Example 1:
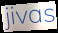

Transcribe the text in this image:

jivas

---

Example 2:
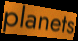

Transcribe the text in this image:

planets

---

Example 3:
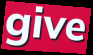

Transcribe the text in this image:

give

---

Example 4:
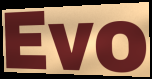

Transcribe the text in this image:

Evo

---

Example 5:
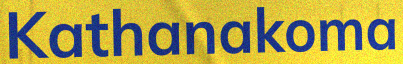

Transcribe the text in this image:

Kathanakoma